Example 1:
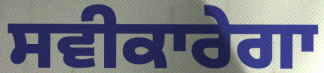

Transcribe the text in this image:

ਸਵੀਕਾਰੇਗਾ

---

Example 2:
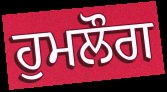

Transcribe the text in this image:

ਹੁਮਲੌਗ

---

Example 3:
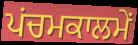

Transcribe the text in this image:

ਪਂਚਮਕਾਲਮੇਂ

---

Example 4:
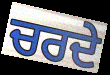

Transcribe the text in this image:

ਚਰਦੇ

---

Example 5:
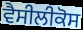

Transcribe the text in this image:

ਵੈਸੀਲੀਕੋਸ